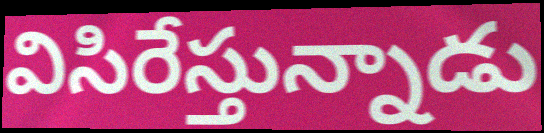
విసిరేస్తున్నాడు